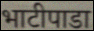
भाटीपाडा